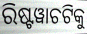
ରିଷ୍ଟୱାଚଟିକୁ